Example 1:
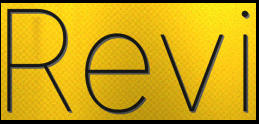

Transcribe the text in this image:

Revi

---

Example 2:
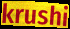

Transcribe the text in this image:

krushi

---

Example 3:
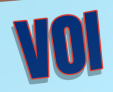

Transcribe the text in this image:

VOI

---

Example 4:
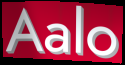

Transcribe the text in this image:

Aalo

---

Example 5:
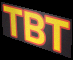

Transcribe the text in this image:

TBT